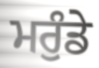
ਮਰੁੰਡੇ